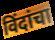
विंदांचा